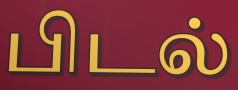
பிடல்